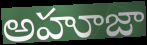
అహూజా